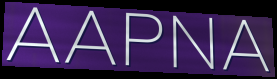
AAPNA